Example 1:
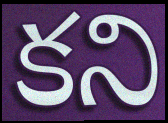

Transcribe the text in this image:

కని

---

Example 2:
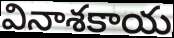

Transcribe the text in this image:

వినాశకాయ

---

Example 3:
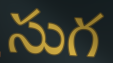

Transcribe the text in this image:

సుగ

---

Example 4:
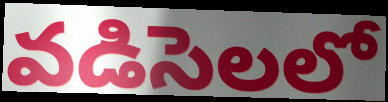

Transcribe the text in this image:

వడిసెలలో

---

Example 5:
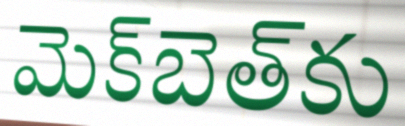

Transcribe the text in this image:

మెక్‌బెత్‌కు